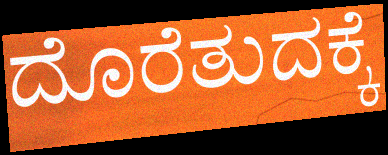
ದೊರೆತುದಕ್ಕೆ